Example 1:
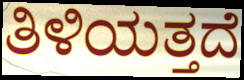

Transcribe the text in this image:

ತಿಳಿಯತ್ತದೆ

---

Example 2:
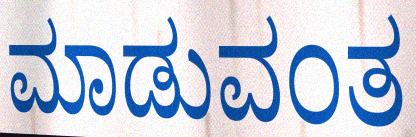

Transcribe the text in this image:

ಮಾಡುವಂತ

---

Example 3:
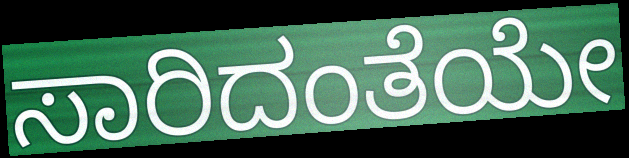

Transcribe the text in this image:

ಸಾರಿದಂತೆಯೇ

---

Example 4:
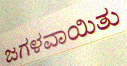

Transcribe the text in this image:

ಜಗಳವಾಯಿತು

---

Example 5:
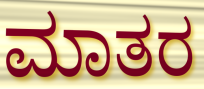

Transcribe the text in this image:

ಮಾತರ